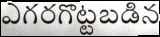
ఎగరగొట్టబడిన